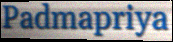
Padmapriya